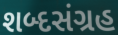
શબ્દસંગ્રહ